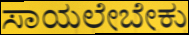
ಸಾಯಲೇಬೇಕು